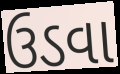
ઉડવા